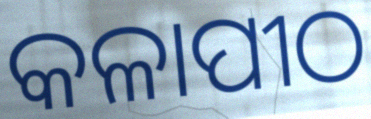
କଳାପୀଠ